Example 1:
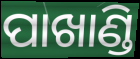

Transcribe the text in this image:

ପାଖାଣ୍ଡି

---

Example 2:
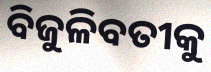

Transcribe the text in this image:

ବିଜୁଳିବତୀକୁ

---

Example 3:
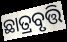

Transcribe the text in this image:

ଛାତ୍ରବୃତ୍ତି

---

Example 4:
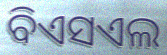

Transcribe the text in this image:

ବିଏସଏଲ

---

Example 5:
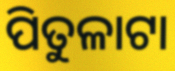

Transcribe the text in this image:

ପିତୁଳାଟା